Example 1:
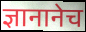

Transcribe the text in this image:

ज्ञानानेच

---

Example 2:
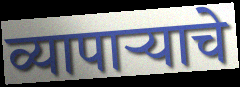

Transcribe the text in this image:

व्यापाऱ्याचे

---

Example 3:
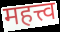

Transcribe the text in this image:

महत्त्व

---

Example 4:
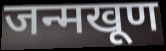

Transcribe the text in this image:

जन्मखूण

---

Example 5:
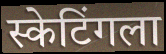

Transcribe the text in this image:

स्केटिंगला